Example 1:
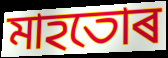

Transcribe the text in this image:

মাহতোৰ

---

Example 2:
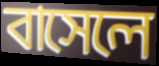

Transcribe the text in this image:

বাসেলে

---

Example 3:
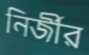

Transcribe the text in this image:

নিৰ্জীৱ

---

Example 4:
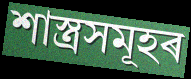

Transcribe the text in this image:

শাস্ত্ৰসমূহৰ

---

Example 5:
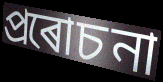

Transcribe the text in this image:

প্ৰৰোচনা